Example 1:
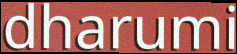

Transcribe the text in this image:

dharumi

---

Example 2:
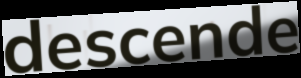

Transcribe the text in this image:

descende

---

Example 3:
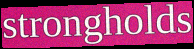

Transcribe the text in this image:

strongholds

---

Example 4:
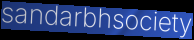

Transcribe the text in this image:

sandarbhsociety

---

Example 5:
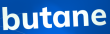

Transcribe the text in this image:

butane